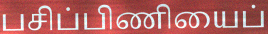
பசிப்பிணியைப்